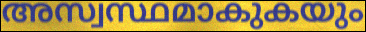
അസ്വസ്ഥമാകുകയും